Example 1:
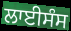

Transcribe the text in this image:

ਲਾਈਸੰਸ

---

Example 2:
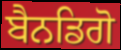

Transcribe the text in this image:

ਬੈਨਡਿਗੋ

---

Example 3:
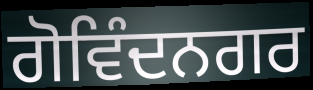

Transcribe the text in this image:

ਗੋਵਿੰਦਨਗਰ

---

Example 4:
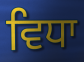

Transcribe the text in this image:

ਵਿਧਾ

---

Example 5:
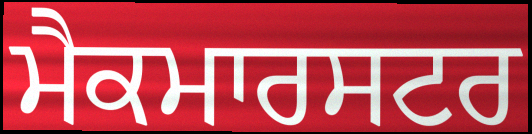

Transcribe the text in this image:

ਮੈਕਮਾਰਸਟਰ